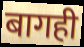
बागही